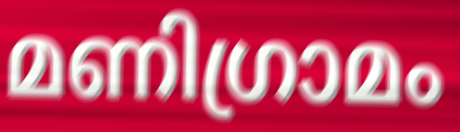
മണിഗ്രാമം